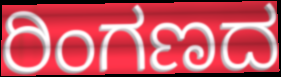
ರಿಂಗಣದ